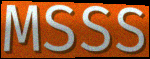
MSSS